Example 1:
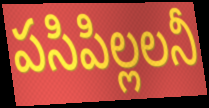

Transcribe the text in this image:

పసిపిల్లలనీ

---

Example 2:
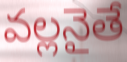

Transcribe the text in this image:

వల్లనైతే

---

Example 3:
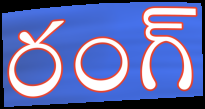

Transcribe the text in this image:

రంగ్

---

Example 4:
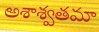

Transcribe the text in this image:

అశాశ్వతమా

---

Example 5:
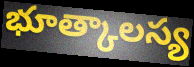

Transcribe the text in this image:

భూత్కాలస్య